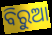
ବିରୁଆ